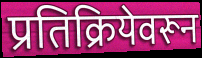
प्रतिक्रियेवरून